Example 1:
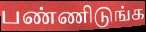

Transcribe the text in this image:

பண்ணிடுங்க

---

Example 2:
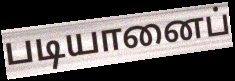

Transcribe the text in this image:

படியானைப்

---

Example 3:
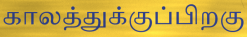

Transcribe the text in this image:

காலத்துக்குப்பிறகு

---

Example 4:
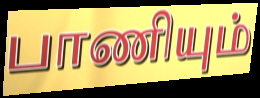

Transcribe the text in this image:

பாணியும்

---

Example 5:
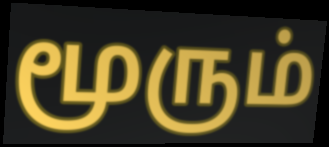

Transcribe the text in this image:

மூரும்